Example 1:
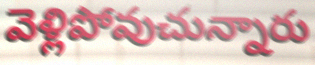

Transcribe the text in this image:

వెళ్లిపోవుచున్నారు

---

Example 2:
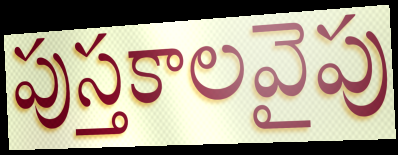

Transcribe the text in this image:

పుస్తకాలవైపు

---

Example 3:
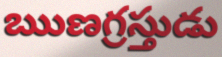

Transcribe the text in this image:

ఋణగ్రస్తుడు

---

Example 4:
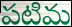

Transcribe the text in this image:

పటిమ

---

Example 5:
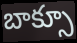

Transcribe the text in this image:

బాక్సూ